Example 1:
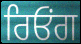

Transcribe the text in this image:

ਰਿਓਂਗ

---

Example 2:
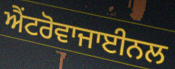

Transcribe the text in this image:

ਐਂਟਰੋਵਾਜਾਈਨਲ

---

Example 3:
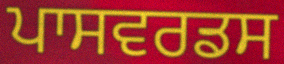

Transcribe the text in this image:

ਪਾਸਵਰਡਸ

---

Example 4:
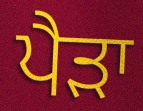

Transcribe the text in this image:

ਪੈੜਾ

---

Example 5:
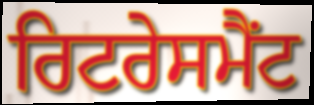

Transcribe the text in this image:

ਰਿਟਰੇਸਮੈਂਟ